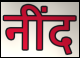
नींद